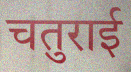
चतुराई